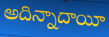
అదిన్నాదాయీ